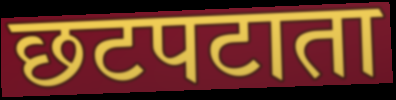
छटपटाता